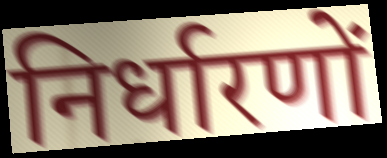
निर्धारणों